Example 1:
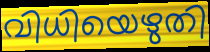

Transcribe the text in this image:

വിധിയെഴുതി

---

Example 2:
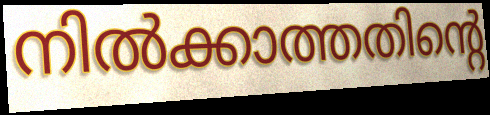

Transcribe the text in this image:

നിൽക്കാത്തതിന്റെ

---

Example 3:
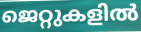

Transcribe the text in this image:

ജെറ്റുകളിൽ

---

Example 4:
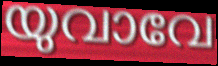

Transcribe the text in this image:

യുവാവേ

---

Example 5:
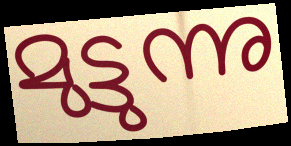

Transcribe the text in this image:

മുട്ടുന്നു